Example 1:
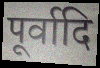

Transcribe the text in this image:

पूर्वादि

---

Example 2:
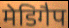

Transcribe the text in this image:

मेडिगैप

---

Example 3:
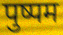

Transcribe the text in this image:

पुष्पम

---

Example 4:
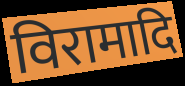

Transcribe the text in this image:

विरामादि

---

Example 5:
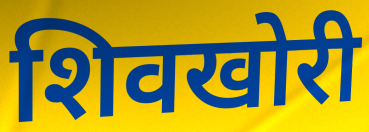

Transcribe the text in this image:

शिवखोरी